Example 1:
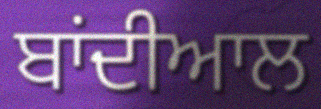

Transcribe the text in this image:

ਬਾਂਦੀਆਲ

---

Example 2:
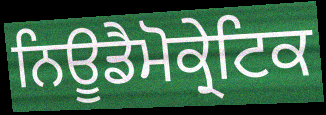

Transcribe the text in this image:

ਨਿਊਡੈਮੋਕ੍ਰੇਟਿਕ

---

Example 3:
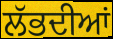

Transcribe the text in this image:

ਲੱਭਦੀਆਂ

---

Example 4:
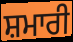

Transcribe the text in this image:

ਸ਼ਮਾਰੀ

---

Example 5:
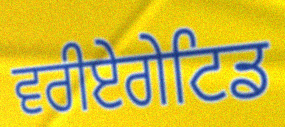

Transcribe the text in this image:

ਵਰੀਏਗੇਟਿਡ